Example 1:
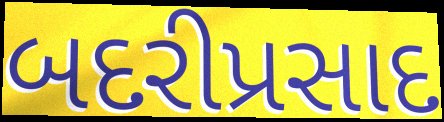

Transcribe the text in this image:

બદરીપ્રસાદ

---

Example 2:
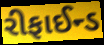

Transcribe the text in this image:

રીફાઈન્ડ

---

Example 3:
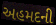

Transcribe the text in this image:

અહમદની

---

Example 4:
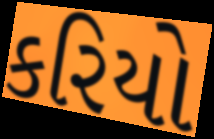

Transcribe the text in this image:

કરિયો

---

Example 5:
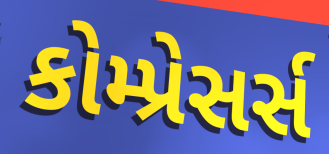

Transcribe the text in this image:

કોમ્પ્રેસર્સ